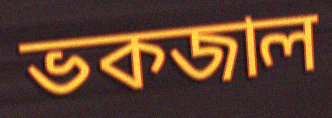
ভকজাল